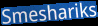
Smeshariks